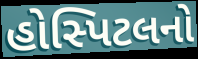
હોસ્પિટલનો